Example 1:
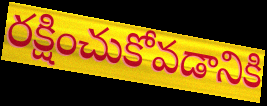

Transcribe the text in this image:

రక్షించుకోవడానికి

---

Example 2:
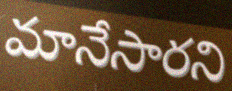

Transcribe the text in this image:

మానేసారని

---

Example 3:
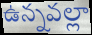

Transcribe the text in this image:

ఉన్నవల్లా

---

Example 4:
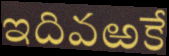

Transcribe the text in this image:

ఇదివఱకే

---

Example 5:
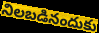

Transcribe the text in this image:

నిలబడినందుకు